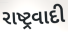
રાષ્ટ્રવાદી